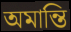
অমান্তি